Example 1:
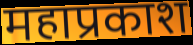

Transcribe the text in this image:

महाप्रकाश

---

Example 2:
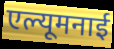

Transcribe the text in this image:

एल्यूमनाई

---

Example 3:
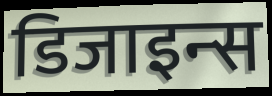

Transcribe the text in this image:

डिजाइन्स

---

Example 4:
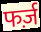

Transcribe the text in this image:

फर्ज़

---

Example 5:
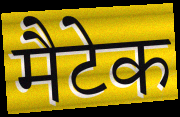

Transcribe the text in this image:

मैटेक